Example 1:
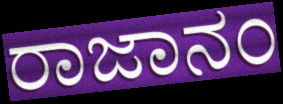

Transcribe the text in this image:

ರಾಜಾನಂ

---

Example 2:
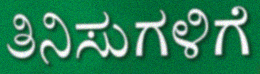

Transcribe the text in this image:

ತಿನಿಸುಗಳಿಗೆ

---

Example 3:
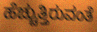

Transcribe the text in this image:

ಹೆಚ್ಚುತ್ತಿರುವಂತೆ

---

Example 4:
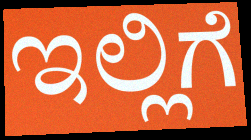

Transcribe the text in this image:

ಇಲ್ಲಿಗೆ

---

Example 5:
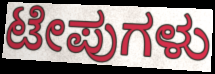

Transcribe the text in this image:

ಟೇಪುಗಳು